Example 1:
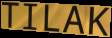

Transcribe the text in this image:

TILAK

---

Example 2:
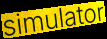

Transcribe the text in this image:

simulator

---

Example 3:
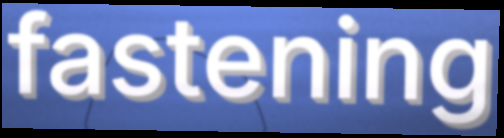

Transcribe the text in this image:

fastening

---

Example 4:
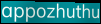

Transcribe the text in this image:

appozhuthu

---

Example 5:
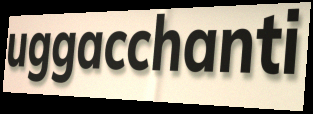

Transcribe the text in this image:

uggacchanti